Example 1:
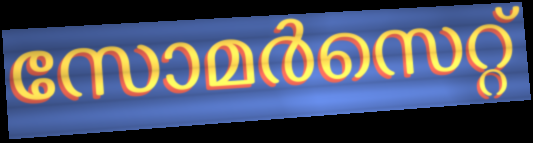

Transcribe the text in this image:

സോമർസെറ്റ്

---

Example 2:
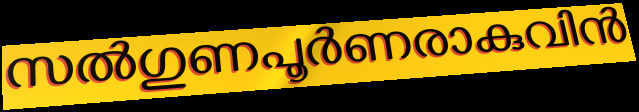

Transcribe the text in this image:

സൽഗുണപൂർണരാകുവിൻ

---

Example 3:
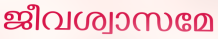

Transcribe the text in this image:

ജീവശ്വാസമേ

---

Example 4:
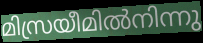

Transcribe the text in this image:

മിസ്രയീമിൽനിന്നു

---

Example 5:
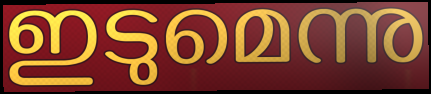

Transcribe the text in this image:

ഇടുമെന്നു